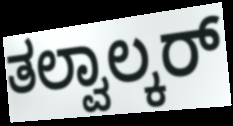
ತಲ್ವಾಲ್ಕರ್